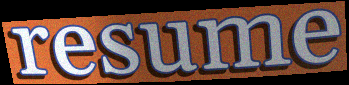
resume